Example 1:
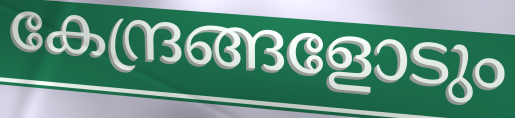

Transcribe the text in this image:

കേന്ദ്രങ്ങളോടും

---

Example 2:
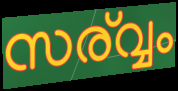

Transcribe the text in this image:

സര്വ്വം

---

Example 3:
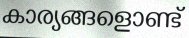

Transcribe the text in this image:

കാര്യങ്ങളൊണ്ട്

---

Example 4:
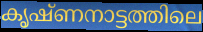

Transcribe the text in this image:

കൃഷ്ണനാട്ടത്തിലെ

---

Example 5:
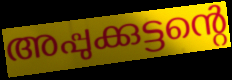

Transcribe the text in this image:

അപ്പുക്കുട്ടന്റെ